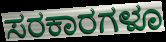
ಸರಕಾರಗಳೂ